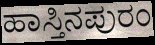
ಹಾಸ್ತಿನಪುರಂ